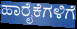
ಹಾರೈಕೆಗಳಿಗೆ